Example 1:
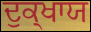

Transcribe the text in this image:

ਦੁਕ੍ਖਾਯ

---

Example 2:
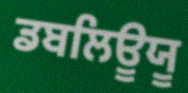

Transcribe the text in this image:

ਡਬਲਿਊਯੂ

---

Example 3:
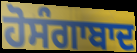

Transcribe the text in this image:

ਹੋਸੰਗਾਬਾਦ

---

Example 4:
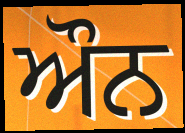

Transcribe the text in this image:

ਔਨ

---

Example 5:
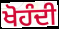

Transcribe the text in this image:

ਖੋਹੰਦੀ